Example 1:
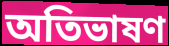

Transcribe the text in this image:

অতিভাষণ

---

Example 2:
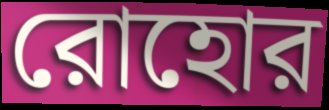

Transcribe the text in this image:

রোহোর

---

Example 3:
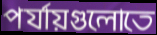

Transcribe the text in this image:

পর্যায়গুলোতে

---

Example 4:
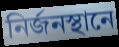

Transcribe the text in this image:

নির্জনস্থানে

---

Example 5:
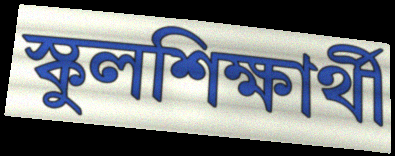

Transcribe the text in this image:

স্কুলশিক্ষার্থী